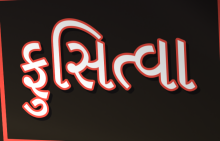
ફુસિત્વા